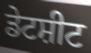
ਡੇਟਸ਼ੀਟ